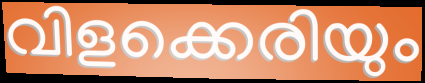
വിളക്കെരിയും